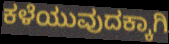
ಕಳೆಯುವುದಕ್ಕಾಗಿ